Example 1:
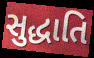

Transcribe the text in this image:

સુદ્ધાતિ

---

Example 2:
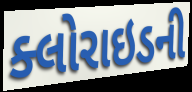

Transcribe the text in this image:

ક્લોરાઇડની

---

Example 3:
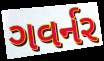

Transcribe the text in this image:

ગવર્નર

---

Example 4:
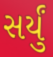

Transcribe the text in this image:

સર્યું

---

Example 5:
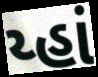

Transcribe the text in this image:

ય્હાં